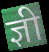
ज्ञी